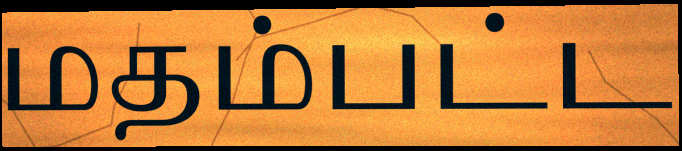
மதம்பட்ட